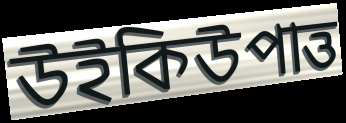
উইকিউপাত্ত